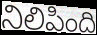
నిలిపింది